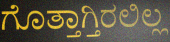
ಗೊತ್ತಾಗ್ತಿರಲಿಲ್ಲ